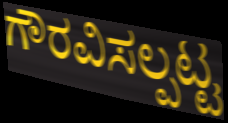
ಗೌರವಿಸಲ್ಪಟ್ಟ